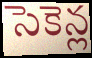
సెకెన్ల